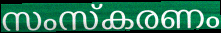
സംസ്‌കരണം